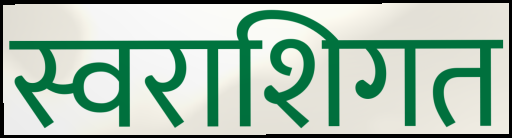
स्वराशिगत